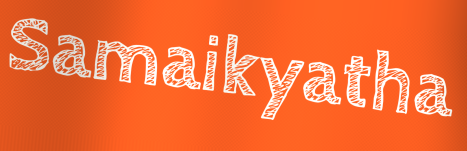
Samaikyatha